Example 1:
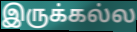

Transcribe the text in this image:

இருக்கல்ல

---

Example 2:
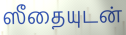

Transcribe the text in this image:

ஸீதையுடன்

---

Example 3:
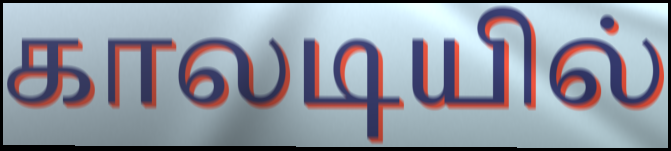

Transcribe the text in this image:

காலடியில்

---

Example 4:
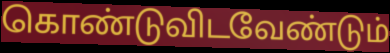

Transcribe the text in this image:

கொண்டுவிடவேண்டும்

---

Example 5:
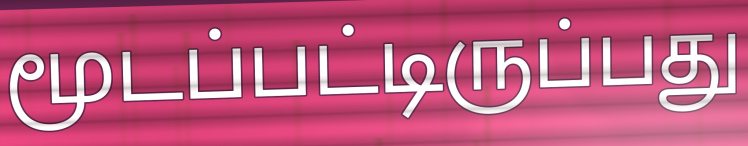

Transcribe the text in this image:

மூடப்பட்டிருப்பது